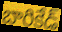
బారికేడ్